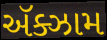
ઍક્ઝામ